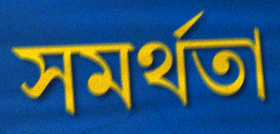
সমর্থতা